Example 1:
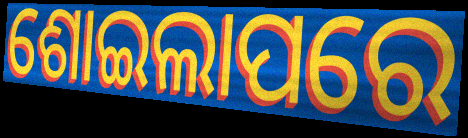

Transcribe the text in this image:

ଶୋଇଲାପରେ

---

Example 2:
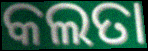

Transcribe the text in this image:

କଲତା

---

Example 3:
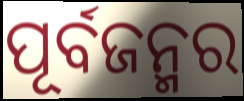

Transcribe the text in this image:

ପୂର୍ବଜନ୍ମର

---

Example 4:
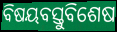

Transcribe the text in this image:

ବିଷୟବସ୍ତୁବିଶେଷ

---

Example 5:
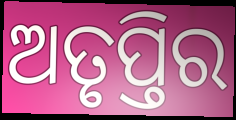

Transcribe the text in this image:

ଅତୃପ୍ତିର